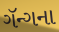
ગૅન્ગના